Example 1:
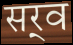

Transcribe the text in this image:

सर्व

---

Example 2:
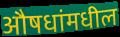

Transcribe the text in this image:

औषधांमधील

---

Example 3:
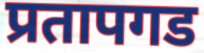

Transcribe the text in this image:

प्रतापगड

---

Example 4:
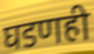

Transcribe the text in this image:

घडणही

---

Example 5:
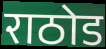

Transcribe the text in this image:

राठोड